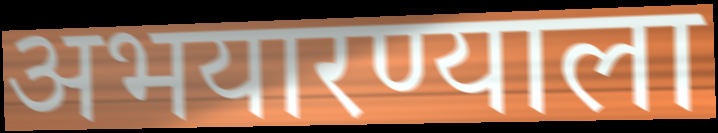
अभयारण्याला